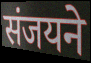
संजयने